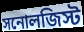
সনোলজিস্ট